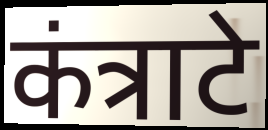
कंत्राटे